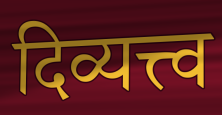
दिव्यत्त्व